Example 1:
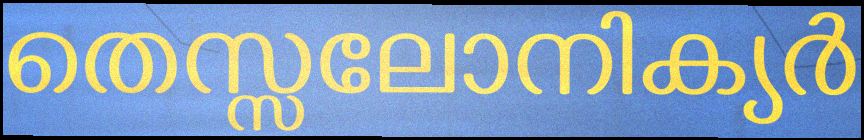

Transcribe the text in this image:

തെസ്സലോനിക്യർ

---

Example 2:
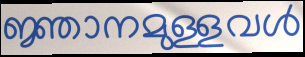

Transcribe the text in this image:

ജ്ഞാനമുള്ളവൾ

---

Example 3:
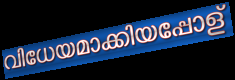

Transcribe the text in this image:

വിധേയമാക്കിയപ്പോള്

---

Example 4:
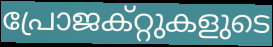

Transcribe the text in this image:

പ്രോജക്റ്റുകളുടെ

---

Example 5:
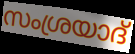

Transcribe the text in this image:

സംശ്രയാദ്